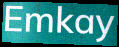
Emkay